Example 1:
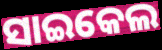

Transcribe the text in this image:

ସାଇକେଲ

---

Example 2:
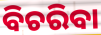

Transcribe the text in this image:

ବିଚରିବା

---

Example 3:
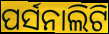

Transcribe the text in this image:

ପର୍ସନାଲିଟି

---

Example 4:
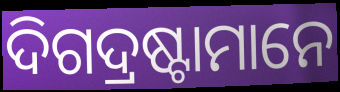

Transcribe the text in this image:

ଦିଗଦ୍ରଷ୍ଟାମାନେ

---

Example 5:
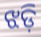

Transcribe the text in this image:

ଝଡ଼ି